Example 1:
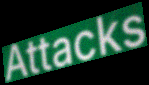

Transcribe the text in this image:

Attacks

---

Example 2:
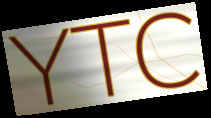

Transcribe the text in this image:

YTC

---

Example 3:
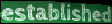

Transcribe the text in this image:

established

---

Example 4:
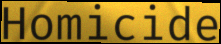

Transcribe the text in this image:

Homicide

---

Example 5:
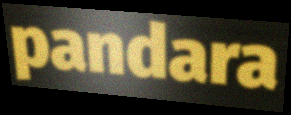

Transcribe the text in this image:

pandara